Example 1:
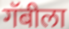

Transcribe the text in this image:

गॅबीला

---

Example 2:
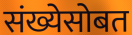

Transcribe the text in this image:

संख्येसोबत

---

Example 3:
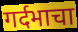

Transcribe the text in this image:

गर्दभाचा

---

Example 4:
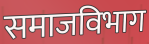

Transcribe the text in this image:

समाजविभाग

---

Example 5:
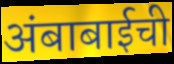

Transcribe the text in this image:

अंबाबाईची